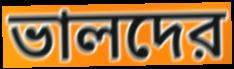
ভালদের